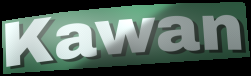
Kawan